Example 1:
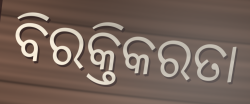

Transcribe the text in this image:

ବିରକ୍ତିକରତା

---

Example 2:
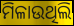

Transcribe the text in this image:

ମିଳାଉଥିଲି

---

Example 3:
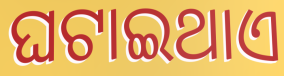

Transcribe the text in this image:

ଘଟାଇଥାଏ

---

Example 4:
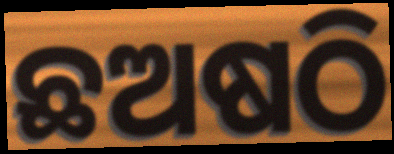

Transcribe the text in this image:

ଛଅଷଠି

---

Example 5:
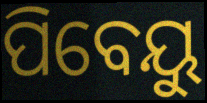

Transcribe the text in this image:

ପିବେୟୁ